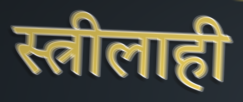
स्त्रीलाही